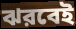
ঝরবেই